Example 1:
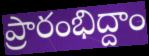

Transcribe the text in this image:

ప్రారంభిద్దాం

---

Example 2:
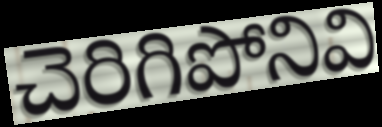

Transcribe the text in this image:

చెరిగిపోనివి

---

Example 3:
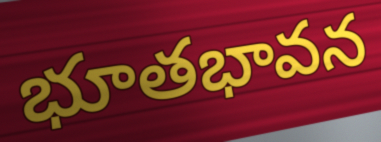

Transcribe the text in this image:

భూతభావన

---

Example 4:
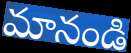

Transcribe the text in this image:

మానండి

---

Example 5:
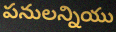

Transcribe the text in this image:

పనులన్నియు